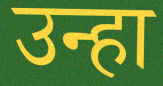
उन्हा